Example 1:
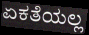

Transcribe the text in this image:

ಏಕತೆಯಲ್ಲ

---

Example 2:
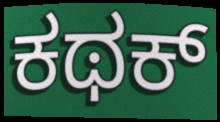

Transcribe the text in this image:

ಕಥಕ್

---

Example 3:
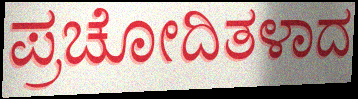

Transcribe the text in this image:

ಪ್ರಚೋದಿತಳಾದ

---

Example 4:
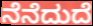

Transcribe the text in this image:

ನೆನೆದುದೆ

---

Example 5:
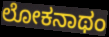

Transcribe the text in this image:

ಲೋಕನಾಥಂ